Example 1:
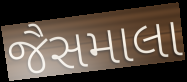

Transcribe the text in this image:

જૈસમાલા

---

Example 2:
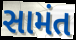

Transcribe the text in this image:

સામંત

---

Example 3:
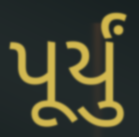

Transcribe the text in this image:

પૂર્યું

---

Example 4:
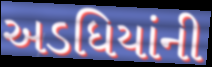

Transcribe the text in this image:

અડધિયાંની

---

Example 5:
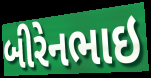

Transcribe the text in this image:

બીરેનભાઇ